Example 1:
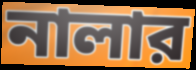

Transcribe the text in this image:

নালার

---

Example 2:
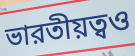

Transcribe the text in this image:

ভারতীয়ত্বও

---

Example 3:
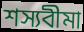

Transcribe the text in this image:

শস্যবীমা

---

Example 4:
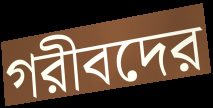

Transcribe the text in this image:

গরীবদের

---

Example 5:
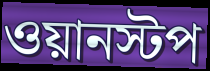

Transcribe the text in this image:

ওয়ানস্টপ